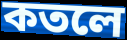
কতলে